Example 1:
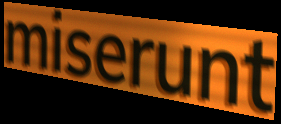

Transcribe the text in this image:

miserunt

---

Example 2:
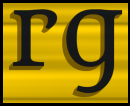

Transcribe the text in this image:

rg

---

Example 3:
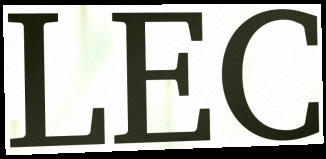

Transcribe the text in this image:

LEC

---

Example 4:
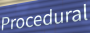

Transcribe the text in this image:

Procedural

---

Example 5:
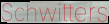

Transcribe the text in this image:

Schwitters